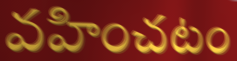
వహించటం